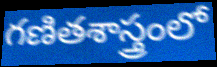
గణితశాస్త్రంలో